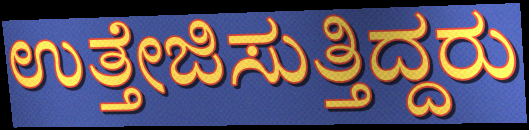
ಉತ್ತೇಜಿಸುತ್ತಿದ್ದರು